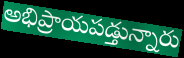
అభిప్రాయపడ్తున్నారు